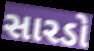
સારડો